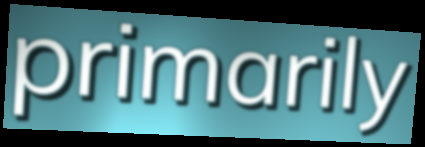
primarily